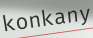
konkany